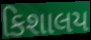
કિશાલય